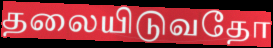
தலையிடுவதோ